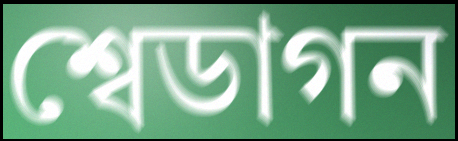
শ্বেডাগন